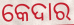
କେଦାର